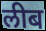
लीब